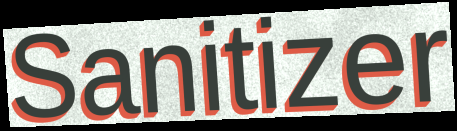
Sanitizer